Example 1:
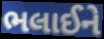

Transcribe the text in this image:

ભલાઈને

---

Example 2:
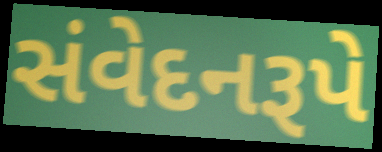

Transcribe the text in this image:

સંવેદનરૂપે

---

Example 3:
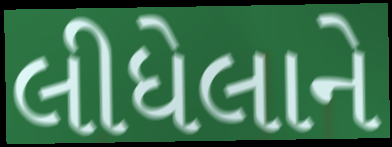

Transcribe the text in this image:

લીધેલાને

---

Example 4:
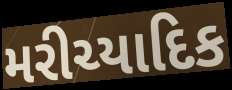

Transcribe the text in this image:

મરીચ્યાદિક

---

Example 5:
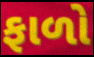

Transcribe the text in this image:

ફાળો